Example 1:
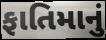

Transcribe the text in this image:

ફાતિમાનું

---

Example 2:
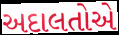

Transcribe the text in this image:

અદાલતોએ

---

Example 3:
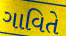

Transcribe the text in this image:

ગાવિતે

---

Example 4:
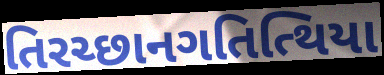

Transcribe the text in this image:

તિરચ્છાનગતિત્થિયા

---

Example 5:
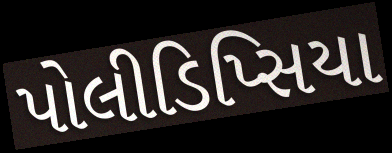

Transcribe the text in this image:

પોલીડિપ્સિયા